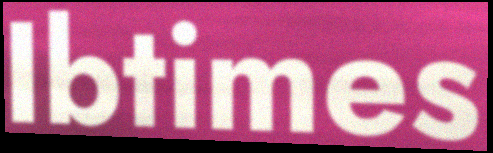
Ibtimes